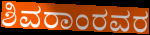
ಶಿವರಾಂರವರ